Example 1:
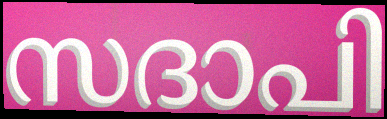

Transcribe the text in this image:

സദാപി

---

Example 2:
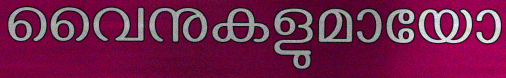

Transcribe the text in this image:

വൈനുകളുമായോ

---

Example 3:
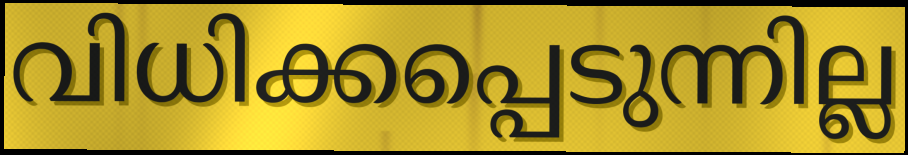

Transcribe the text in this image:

വിധിക്കപ്പെടുന്നില്ല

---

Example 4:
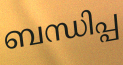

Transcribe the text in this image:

ബന്ധിപ്പ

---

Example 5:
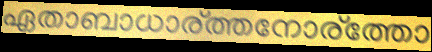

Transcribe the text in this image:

ഏതാബാധാര്ത്തനോര്ത്തോ